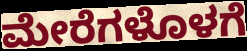
ಮೇರೆಗಳೊಳಗೆ